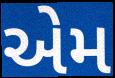
એેમ